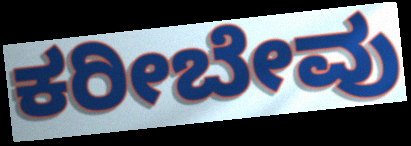
ಕರೀಬೇವು